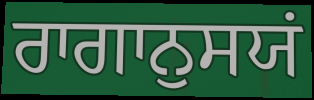
ਰਾਗਾਨੁਸਯਂ